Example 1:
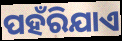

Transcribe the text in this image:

ପହଁରିଯାଏ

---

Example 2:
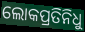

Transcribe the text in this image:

ଲୋକପ୍ରତିନିଧୁ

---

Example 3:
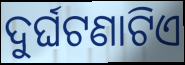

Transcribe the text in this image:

ଦୁର୍ଘଟଣାଟିଏ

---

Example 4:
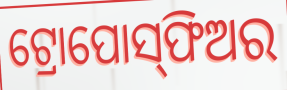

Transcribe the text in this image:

ଟ୍ରୋପୋସ୍‌ଫିଅର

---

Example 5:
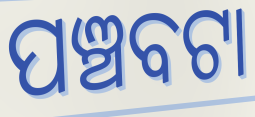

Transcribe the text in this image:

ପଞ୍ଚବଟା